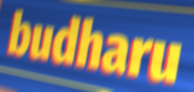
budharu